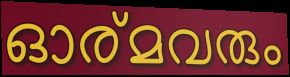
ഓര്മവരും